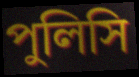
পুলিসি